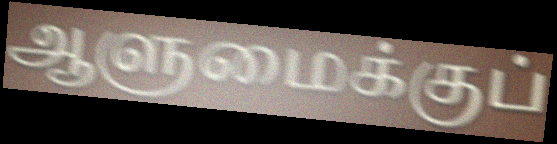
ஆளுமைக்குப்